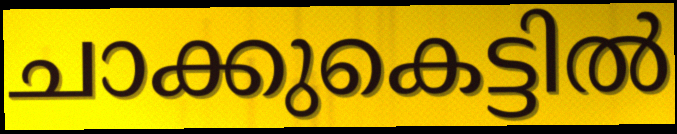
ചാക്കുകെട്ടിൽ